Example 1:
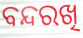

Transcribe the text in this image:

ବନ୍ଦରଖି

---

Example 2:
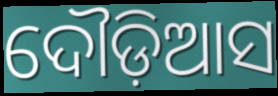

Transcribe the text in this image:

ଦୌଡ଼ିଆସ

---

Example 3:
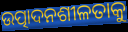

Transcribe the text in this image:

ଉତ୍ପାଦନଶୀଳତାକୁ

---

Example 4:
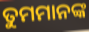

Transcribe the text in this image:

ତୁମମାନଙ୍କ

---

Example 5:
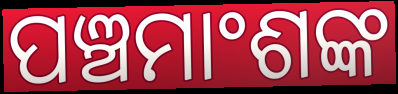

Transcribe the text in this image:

ପଞ୍ଚମାଂଶଙ୍କ